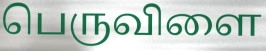
பெருவிளை